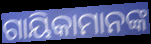
ଗାୟିକାମାନଙ୍କ